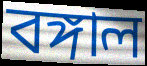
বঙ্গাল